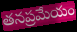
తనప్రమేయం